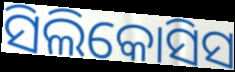
ସିଲିକୋସିସ